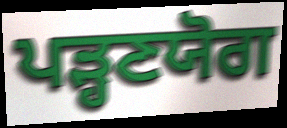
ਪੜ੍ਹਣਯੋਗ